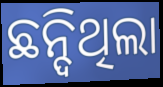
ଛନ୍ଦିଥିଲା